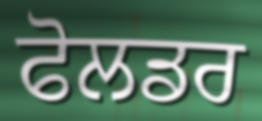
ਫੋਲਡਰ